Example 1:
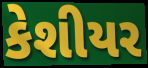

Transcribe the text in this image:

કેશીયર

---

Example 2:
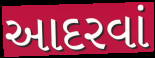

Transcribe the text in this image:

આદરવાં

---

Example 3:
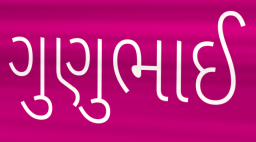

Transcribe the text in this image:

ગુણુભાઈ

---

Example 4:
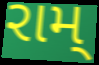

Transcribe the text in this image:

રામ્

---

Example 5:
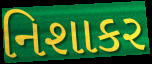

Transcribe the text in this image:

નિશાકર